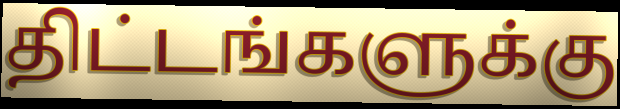
திட்டங்களுக்கு